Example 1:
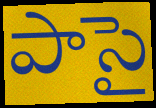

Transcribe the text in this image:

పాసై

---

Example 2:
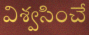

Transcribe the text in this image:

విశ్వసించే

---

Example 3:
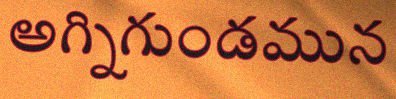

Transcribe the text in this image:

అగ్నిగుండమున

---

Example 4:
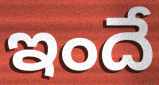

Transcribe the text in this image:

ఇందే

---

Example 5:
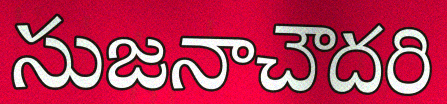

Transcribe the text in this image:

సుజనాచౌదరి